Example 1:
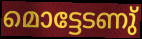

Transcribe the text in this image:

മൊട്ടേടണു്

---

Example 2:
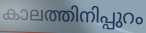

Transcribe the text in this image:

കാലത്തിനിപ്പുറം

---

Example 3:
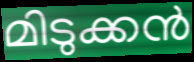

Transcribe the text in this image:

മിടുക്കൻ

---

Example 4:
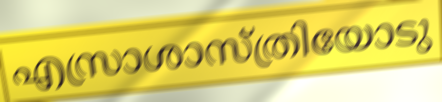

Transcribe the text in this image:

എസ്രാശാസ്ത്രിയോടു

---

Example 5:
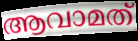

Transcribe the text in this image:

ആവാമത്